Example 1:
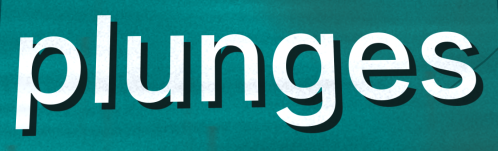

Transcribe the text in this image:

plunges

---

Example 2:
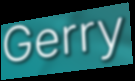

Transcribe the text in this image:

Gerry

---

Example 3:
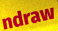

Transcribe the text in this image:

ndraw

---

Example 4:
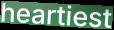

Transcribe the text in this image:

heartiest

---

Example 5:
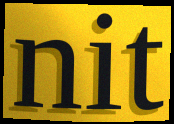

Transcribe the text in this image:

nit